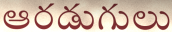
ఆరడుగులు